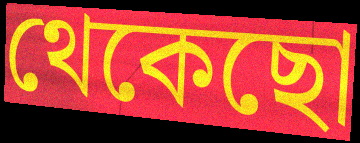
থেকেছো